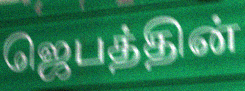
ஜெபத்தின்